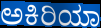
ಅಕಿರಿಯಾ